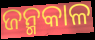
ଜନ୍ମକାଳ